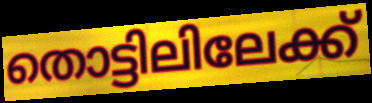
തൊട്ടിലിലേക്ക്